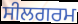
ਸੀਲਗਰਮ